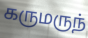
கருமருந்